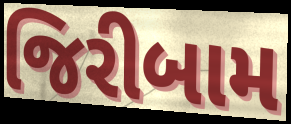
જિરીબામ